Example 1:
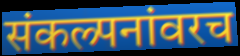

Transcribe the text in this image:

संकल्पनांवरच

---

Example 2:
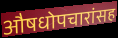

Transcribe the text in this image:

औषधोपचारांसह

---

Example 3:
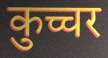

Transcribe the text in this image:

कुच्चर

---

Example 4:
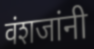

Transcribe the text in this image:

वंशजांनी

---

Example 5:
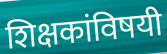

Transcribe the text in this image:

शिक्षकांविषयी